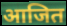
आजित